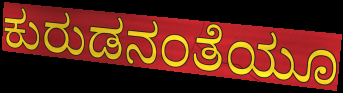
ಕುರುಡನಂತೆಯೂ